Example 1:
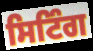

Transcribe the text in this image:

ਸਿਟਿੰਗ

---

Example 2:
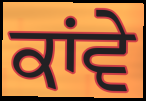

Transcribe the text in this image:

ਕਾਂਵੇ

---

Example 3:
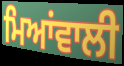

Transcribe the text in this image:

ਮਿਆਂਵਾਲੀ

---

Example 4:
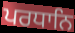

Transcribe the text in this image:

ਪਰਧਾਨਿ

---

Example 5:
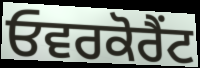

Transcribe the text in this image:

ਓਵਰਕੋਰੈਂਟ